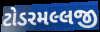
ટોડરમલ્લજી